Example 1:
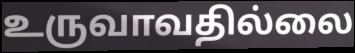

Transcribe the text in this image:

உருவாவதில்லை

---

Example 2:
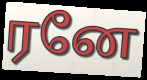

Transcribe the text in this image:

ரனே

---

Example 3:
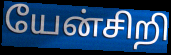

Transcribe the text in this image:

யேன்சிறி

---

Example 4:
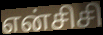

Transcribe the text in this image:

என்சிசி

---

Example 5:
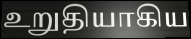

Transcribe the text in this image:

உறுதியாகிய